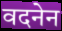
वदनेन